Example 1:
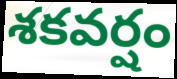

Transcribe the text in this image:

శకవర్షం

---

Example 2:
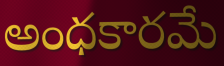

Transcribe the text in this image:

అంధకారమే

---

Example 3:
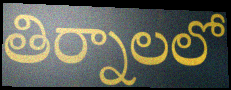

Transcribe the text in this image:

తిర్నాలలో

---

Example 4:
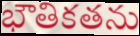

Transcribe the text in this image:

భౌతికతను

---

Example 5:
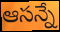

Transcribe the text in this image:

ఆసన్నే